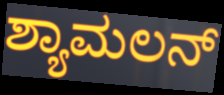
ಶ್ಯಾಮಲನ್